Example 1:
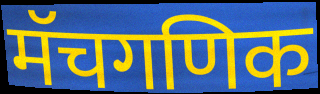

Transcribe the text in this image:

मॅचगणिक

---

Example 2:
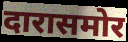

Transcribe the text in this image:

दारासमोर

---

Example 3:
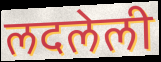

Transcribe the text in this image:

लदलेली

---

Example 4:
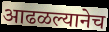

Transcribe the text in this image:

आढळल्यानेच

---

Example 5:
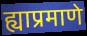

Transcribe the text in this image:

ह्याप्रमाणे